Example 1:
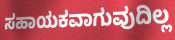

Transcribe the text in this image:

ಸಹಾಯಕವಾಗುವುದಿಲ್ಲ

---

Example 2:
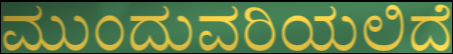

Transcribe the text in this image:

ಮುಂದುವರಿಯಲಿದೆ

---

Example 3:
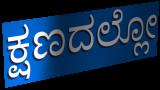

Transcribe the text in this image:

ಕ್ಷಣದಲ್ಲೋ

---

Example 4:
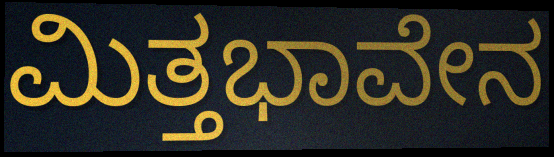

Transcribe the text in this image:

ಮಿತ್ತಭಾವೇನ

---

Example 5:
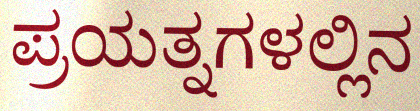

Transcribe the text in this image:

ಪ್ರಯತ್ನಗಳಲ್ಲಿನ